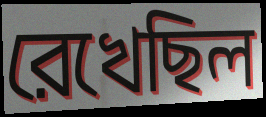
রেখেছিল